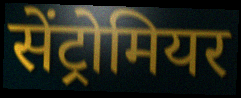
सेंट्रोमियर